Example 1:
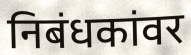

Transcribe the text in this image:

निबंधकांवर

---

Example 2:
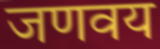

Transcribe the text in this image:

जणवय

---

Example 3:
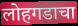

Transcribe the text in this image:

लोहगडाचा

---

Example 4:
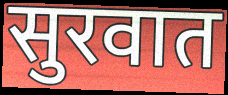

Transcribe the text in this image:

सुरवात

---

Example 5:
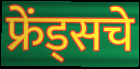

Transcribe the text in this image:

फ्रेंड्सचे